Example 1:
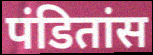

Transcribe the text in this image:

पंडितांस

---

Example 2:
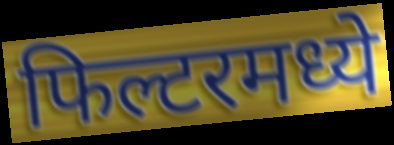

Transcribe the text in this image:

फिल्टरमध्ये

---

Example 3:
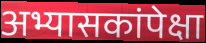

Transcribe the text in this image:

अभ्यासकांपेक्षा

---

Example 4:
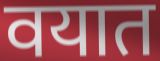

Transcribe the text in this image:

वयात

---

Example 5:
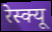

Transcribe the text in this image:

रेस्क्यू